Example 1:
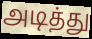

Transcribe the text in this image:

அடித்து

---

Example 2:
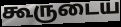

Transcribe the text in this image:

கூருடைய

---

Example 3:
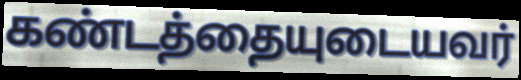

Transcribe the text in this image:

கண்டத்தையுடையவர்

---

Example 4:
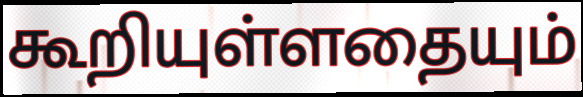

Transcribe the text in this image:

கூறியுள்ளதையும்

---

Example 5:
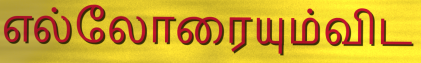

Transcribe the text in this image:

எல்லோரையும்விட